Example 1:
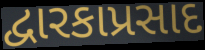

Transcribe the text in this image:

દ્વારકાપ્રસાદ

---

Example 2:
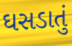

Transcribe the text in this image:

ઘસડાતું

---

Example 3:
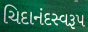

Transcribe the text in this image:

ચિદાનંદસ્વરૂપ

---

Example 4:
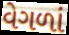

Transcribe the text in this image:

વેગળાં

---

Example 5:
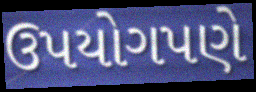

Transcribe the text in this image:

ઉપયોગપણે